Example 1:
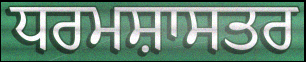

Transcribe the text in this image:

ਧਰਮਸ਼ਾਸਤਰ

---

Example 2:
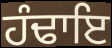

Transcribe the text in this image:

ਹੰਢਾਇ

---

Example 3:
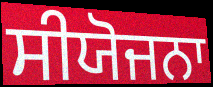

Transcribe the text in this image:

ਸੀਯੋਜਨਾ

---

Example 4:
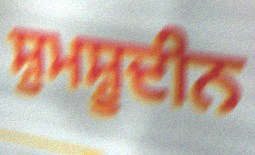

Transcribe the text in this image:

ਸ਼ੁਮਸ਼ੂਦੀਨ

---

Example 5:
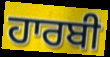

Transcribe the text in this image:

ਹਾਰਬੀ